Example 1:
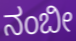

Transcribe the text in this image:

ನಂಬೀ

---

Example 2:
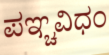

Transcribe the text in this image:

ಪಞ್ಚವಿಧಂ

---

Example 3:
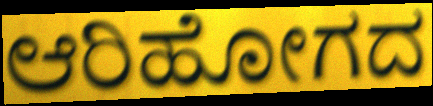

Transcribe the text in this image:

ಆರಿಹೋಗದ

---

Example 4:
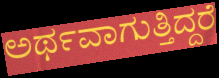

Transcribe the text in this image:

ಅರ್ಥವಾಗುತ್ತಿದ್ದರೆ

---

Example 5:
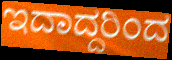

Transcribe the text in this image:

ಇದಾದ್ದರಿಂದ